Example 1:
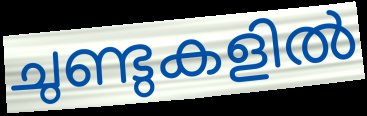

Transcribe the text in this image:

ചുണ്ടുകളിൽ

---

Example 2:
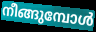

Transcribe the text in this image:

നീങ്ങുമ്പോൾ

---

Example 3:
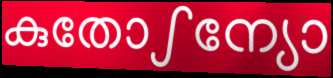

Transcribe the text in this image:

കുതോഽന്യോ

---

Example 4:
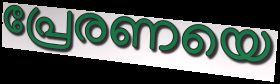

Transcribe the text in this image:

പ്രേരണയെ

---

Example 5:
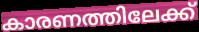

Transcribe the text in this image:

കാരണത്തിലേക്ക്